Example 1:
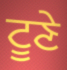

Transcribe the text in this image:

ਟੂਣੇ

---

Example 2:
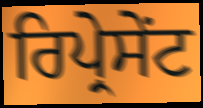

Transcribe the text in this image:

ਰਿਪ੍ਰੇਸੇੰਟ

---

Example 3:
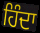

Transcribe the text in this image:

ਹਿੰਦਾ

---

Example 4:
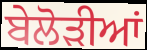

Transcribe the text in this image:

ਬੇਲੋੜੀਆਂ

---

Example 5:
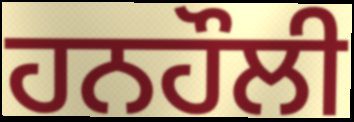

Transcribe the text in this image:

ਹਨਹੌਲੀ